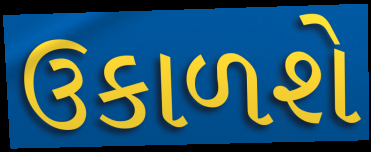
ઉકાળશે